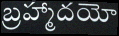
బ్రహ్మాదయో